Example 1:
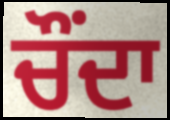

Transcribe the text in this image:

ਚੌਂਦਾ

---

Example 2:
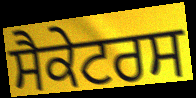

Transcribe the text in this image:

ਸੈਕੇਟਰਸ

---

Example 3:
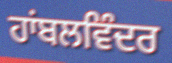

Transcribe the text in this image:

ਹਾਂਬਲਵਿੰਦਰ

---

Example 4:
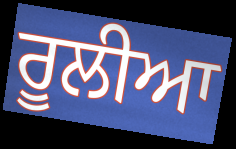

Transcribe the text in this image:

ਰੂਲੀਆ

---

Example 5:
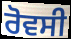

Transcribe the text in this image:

ਰੋਵਸੀ